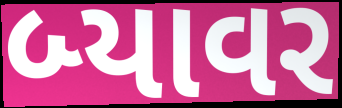
બ્યાવર